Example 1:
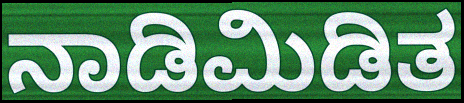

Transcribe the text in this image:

ನಾಡಿಮಿಡಿತ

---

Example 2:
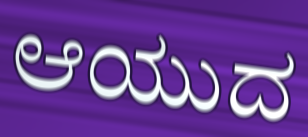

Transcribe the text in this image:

ಆಯುದ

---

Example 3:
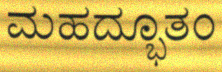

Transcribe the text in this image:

ಮಹದ್ಭೂತಂ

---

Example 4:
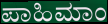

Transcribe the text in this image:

ಪಾಹಿಮಾಂ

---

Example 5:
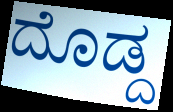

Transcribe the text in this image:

ದೊಡ್ದ